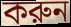
করুন